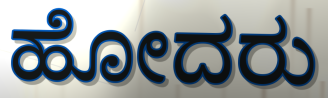
ಹೋದರು